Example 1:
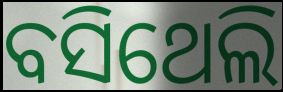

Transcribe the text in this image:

ବସିଥେଲି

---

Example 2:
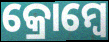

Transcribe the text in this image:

କ୍ରୋମ୍ବେ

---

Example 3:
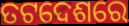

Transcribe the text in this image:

ତଟଦେଶରେ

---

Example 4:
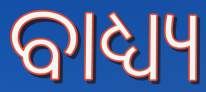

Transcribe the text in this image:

ବାଧ୍ୟ୍ୟ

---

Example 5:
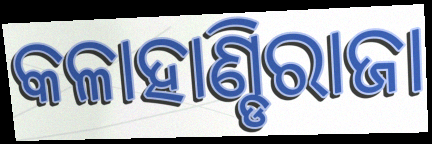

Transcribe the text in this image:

କଳାହାଣ୍ଡିରାଜା